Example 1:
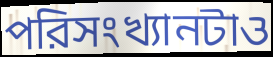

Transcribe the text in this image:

পরিসংখ্যানটাও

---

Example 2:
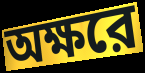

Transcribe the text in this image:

অক্ষরে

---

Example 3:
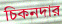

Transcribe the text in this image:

চিকনদার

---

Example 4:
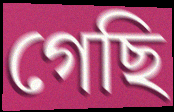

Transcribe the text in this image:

গেছি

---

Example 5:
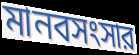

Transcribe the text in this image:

মানবসংসার